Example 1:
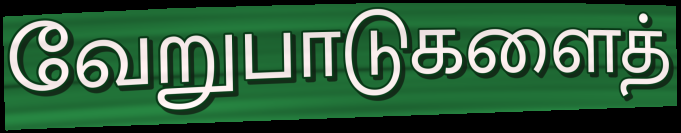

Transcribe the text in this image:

வேறுபாடுகளைத்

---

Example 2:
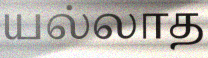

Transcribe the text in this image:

யல்லாத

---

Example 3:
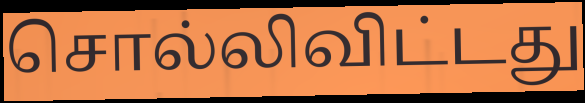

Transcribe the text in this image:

சொல்லிவிட்டது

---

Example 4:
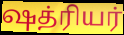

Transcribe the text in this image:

ஷத்ரியர்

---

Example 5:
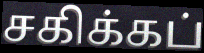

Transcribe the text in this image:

சகிக்கப்